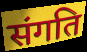
संगति